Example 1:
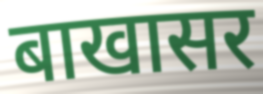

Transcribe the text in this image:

बाखासर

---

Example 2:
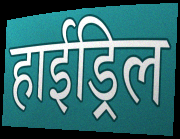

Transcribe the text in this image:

हाईड्रिल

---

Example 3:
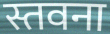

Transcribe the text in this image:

स्तवना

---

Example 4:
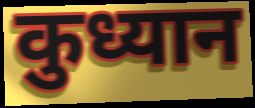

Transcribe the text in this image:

कुध्यान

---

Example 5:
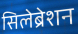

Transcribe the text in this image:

सिलेब्रेशन